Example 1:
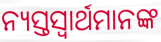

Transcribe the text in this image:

ନ୍ୟସ୍ତସ୍ଵାର୍ଥମାନଙ୍କ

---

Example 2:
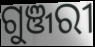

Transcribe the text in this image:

ଗୁଞ୍ଜରୀ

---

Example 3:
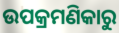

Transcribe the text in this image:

ଉପକ୍ରମଣିକାରୁ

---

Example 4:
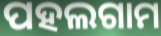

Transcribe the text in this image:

ପହଲଗାମ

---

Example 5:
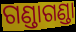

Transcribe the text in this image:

ଗଣ୍ଡାଗଣ୍ଡା